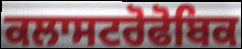
ਕਲਾਸਟਰੋਫੋਬਿਕ